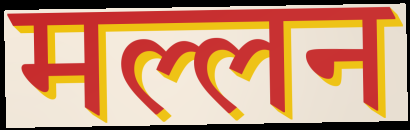
मल्लन